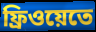
ফ্রিওয়েতে